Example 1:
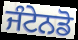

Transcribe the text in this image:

ਜੰਟੇਨਡੋ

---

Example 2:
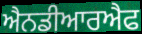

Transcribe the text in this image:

ਐਨਡੀਆਰਐਫ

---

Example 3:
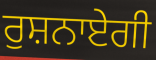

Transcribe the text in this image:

ਰੁਸ਼ਨਾਏਗੀ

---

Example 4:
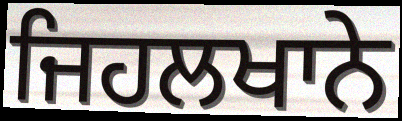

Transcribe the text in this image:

ਜਿਹਲਖਾਨੇ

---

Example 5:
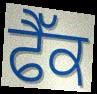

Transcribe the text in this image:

ਫੈੱਕ